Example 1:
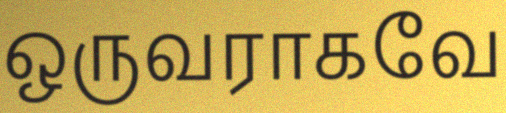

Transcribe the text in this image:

ஒருவராகவே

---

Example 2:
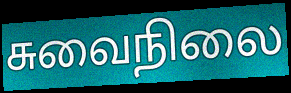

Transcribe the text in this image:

சுவைநிலை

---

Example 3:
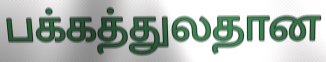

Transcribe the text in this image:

பக்கத்துலதான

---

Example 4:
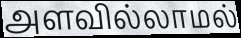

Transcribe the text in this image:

அளவில்லாமல்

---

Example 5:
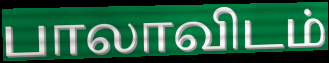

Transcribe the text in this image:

பாலாவிடம்